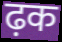
ढ़क